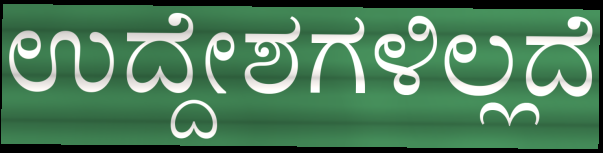
ಉದ್ದೇಶಗಳಿಲ್ಲದೆ